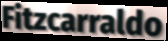
Fitzcarraldo